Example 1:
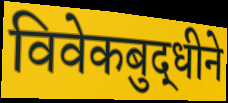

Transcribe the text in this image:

विवेकबुद्धीने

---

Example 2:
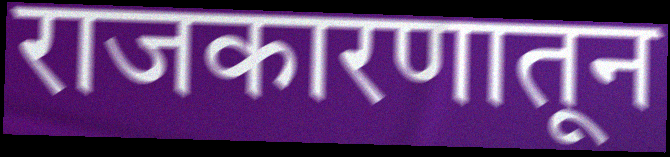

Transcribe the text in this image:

राजकारणातून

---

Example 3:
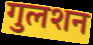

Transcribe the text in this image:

गुलशन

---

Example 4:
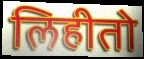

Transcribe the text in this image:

लिहीतो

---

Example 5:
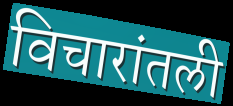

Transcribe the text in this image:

विचारांतली